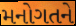
મનોગતને